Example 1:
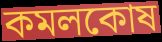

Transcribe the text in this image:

কমলকোষ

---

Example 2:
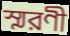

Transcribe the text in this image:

স্মরণী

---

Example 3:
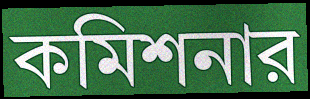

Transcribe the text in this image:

কমিশনার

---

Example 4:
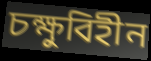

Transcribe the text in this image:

চক্ষুবিহীন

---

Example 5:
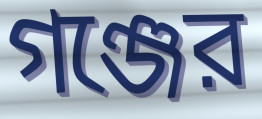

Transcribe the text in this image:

গঞ্জের